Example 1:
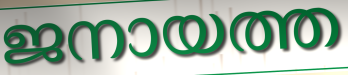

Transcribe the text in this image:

ജനായത്ത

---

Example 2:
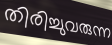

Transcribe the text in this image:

തിരിച്ചുവരുന്ന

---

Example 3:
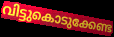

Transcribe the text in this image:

വിട്ടുകൊടുക്കേണ്ട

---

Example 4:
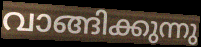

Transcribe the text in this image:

വാങ്ങിക്കുന്നു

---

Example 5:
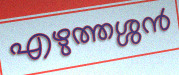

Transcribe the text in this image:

എഴുത്തശ്ശൻ